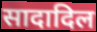
सादादिल